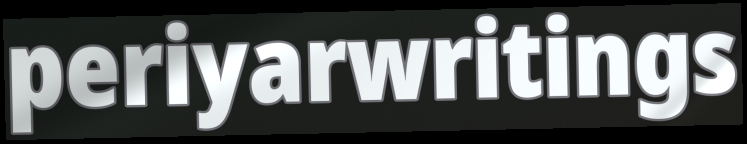
periyarwritings